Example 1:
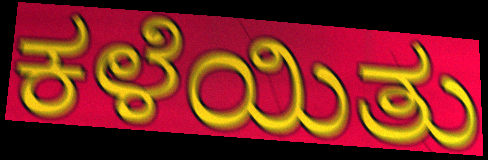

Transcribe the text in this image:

ಕಳೆಯಿತು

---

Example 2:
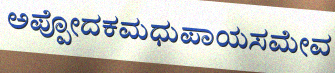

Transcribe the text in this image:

ಅಪ್ಪೋದಕಮಧುಪಾಯಸಮೇವ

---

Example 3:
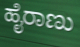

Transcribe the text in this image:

ಹೈರಾಣು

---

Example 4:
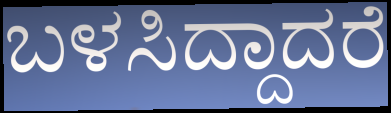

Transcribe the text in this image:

ಬಳಸಿದ್ದಾದರೆ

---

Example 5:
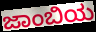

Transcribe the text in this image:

ಜಾಂಬಿಯ